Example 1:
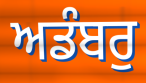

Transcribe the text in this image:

ਅਡੰਬਰੁ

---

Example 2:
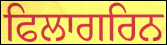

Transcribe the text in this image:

ਫਿਲਾਗਰਿਨ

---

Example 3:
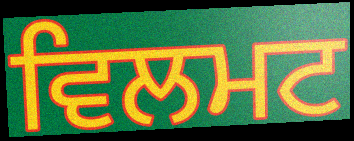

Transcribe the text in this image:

ਵਿਲਮਟ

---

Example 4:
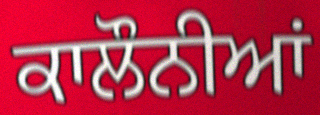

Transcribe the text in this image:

ਕਾਲੌਨੀਆਂ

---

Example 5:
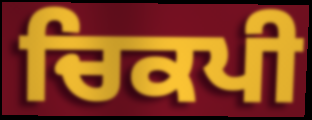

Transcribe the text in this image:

ਚਿਕਪੀ